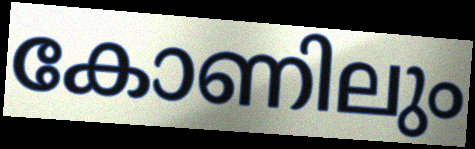
കോണിലും